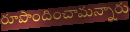
రూపొందించామన్నారు